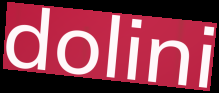
dolini